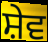
ਸ਼ੇਵ